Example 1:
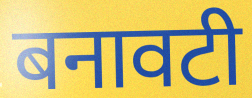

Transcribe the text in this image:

बनावटी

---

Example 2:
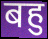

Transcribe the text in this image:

बहु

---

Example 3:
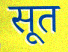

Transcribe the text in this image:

सूत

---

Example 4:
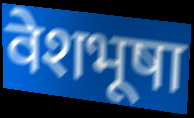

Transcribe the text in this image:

वेशभूषा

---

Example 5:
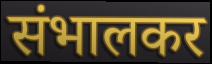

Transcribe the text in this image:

संभालकर